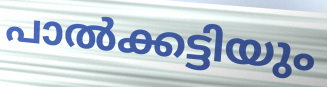
പാൽക്കട്ടിയും